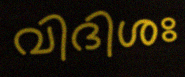
വിദിശഃ